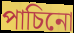
পাচিনো